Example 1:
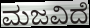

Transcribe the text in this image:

ಮಜವಿದೆ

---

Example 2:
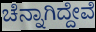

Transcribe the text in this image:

ಚೆನ್ನಾಗಿದ್ದೇವೆ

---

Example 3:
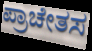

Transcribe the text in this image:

ಪ್ರಾಚೇತಸ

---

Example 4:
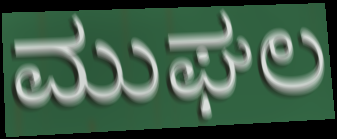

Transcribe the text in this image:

ಮುಘಲ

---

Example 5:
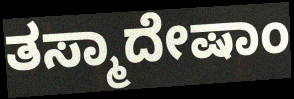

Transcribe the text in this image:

ತಸ್ಮಾದೇಷಾಂ